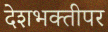
देशभक्तीपर